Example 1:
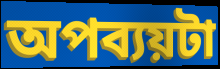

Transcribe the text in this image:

অপব্যয়টা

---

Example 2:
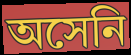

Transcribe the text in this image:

অসেনি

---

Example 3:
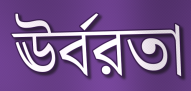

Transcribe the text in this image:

ঊর্বরতা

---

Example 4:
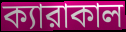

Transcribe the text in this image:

ক্যারাকাল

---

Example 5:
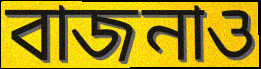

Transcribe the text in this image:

বাজনাও